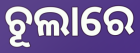
ଚୂଲାରେ